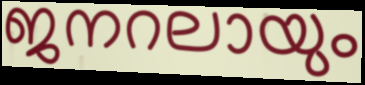
ജനറലായും